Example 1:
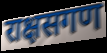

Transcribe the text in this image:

राक्षसगण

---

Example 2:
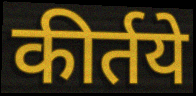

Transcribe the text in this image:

कीर्तये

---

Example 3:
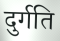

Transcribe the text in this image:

दुर्गति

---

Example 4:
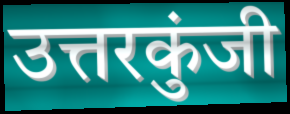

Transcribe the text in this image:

उत्तरकुंजी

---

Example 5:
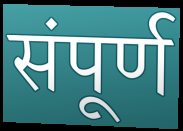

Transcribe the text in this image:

संपूर्ण